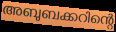
അബുബക്കറിന്റെ